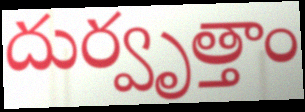
దుర్వృత్తాం